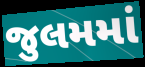
જુલમમાં